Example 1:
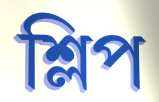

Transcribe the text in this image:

শ্লিপ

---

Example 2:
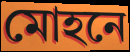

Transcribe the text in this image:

মোহনে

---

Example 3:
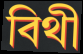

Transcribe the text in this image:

বিথী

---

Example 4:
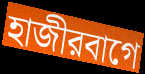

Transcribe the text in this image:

হাজীরবাগে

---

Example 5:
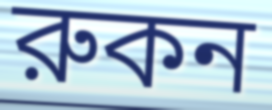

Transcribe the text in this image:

রুকন